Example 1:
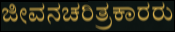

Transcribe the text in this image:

ಜೀವನಚರಿತ್ರಕಾರರು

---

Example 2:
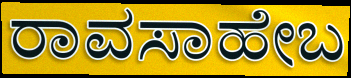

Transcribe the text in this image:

ರಾವಸಾಹೇಬ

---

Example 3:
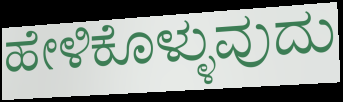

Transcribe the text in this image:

ಹೇಳಿಕೊಳ್ಳುವುದು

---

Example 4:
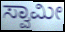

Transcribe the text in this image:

ಸ್ವಾಮೀ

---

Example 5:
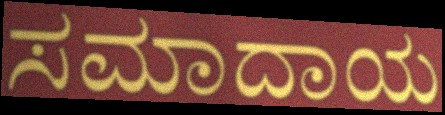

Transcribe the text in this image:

ಸಮಾದಾಯ